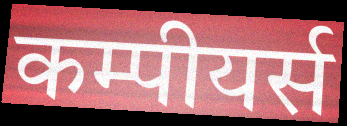
कम्पीयर्स